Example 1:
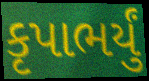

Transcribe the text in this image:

કૃપાભર્યું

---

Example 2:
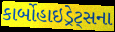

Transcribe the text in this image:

કાર્બોહાઇડ્રેટ્સના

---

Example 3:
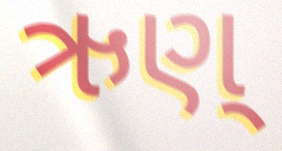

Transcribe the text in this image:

ઋણ્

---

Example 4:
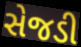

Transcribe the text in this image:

સેજડી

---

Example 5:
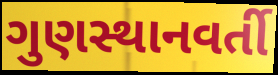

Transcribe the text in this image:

ગુણસ્થાનવર્તી